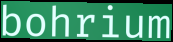
bohrium